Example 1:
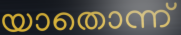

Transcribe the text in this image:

യാതൊന്ന്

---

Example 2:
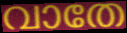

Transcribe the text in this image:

വാതേ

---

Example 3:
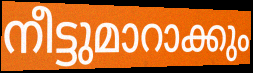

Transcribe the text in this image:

നീട്ടുമാറാക്കും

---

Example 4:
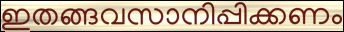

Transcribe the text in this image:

ഇതങ്ങവസാനിപ്പിക്കണം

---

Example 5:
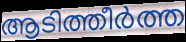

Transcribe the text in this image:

ആടിത്തീർത്ത